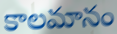
కాలమానం